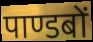
पाण्डबों